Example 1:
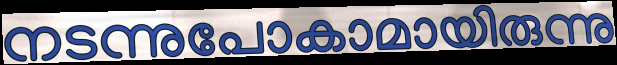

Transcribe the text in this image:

നടന്നുപോകാമായിരുന്നു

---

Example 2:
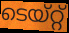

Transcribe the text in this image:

ടെയ്റ്റ്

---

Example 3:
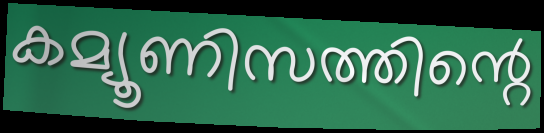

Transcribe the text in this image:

കമ്യൂണിസത്തിന്റെ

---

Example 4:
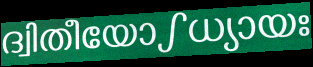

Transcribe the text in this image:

ദ്വിതീയോഽധ്യായഃ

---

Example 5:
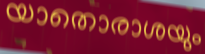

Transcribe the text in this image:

യാതൊരാശയും